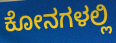
ಕೋನಗಳಲ್ಲಿ